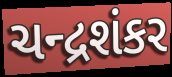
ચન્દ્રશંકર